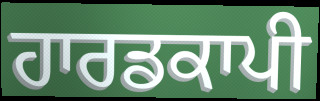
ਹਾਰਡਕਾਪੀ